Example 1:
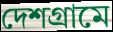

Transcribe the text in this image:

দেশগ্রামে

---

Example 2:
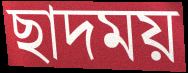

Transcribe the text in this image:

ছাদময়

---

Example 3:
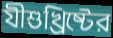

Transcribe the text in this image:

যীশুখ্রিষ্টের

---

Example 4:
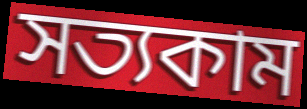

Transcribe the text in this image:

সত্যকাম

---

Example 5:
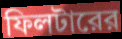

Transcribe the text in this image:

ফিলটারের